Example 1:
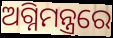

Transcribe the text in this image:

ଅଗ୍ନିମନ୍ତ୍ରରେ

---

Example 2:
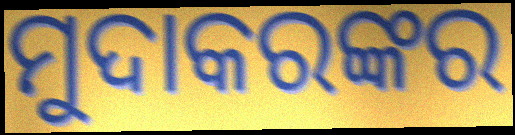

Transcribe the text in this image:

ମୁଦାକରଙ୍କର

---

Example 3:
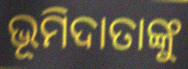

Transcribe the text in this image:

ଭୂମିଦାତାଙ୍କୁ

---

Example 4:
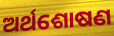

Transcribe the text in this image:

ଅର୍ଥଶୋଷଣ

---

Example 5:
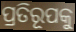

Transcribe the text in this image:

ପ୍ରତିରୂପକୁ